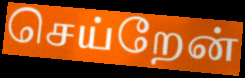
செய்றேன்